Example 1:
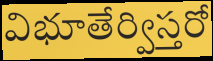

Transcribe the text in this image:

విభూతేర్విస్తరో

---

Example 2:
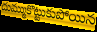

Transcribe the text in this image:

దుమ్ముకొట్టుకుపోయిన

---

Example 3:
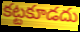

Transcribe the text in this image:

కట్టకూడదు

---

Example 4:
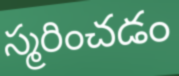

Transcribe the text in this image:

స్మరించడం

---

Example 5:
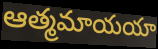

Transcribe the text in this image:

ఆత్మమాయయా